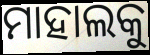
ମାହାଲକୁ